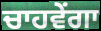
ਚਾਹਵੇਂਗਾ